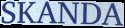
SKANDA